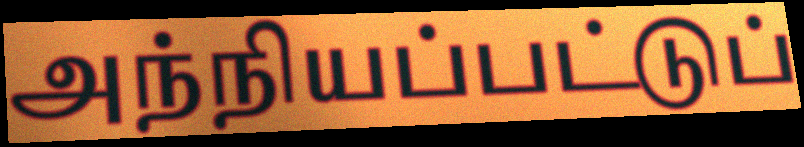
அந்நியப்பட்டுப்